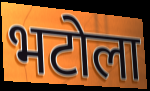
भटोला